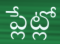
ప్లేట్లో